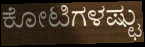
ಕೋಟಿಗಳಷ್ಟು